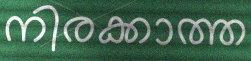
നിരക്കാത്ത